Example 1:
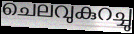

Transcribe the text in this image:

ചെലവുകുറച്ചു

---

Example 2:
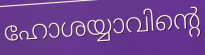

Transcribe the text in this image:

ഹോശയ്യാവിന്റെ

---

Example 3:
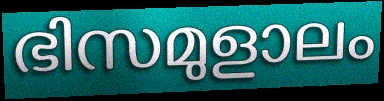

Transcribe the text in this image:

ഭിസമുളാലം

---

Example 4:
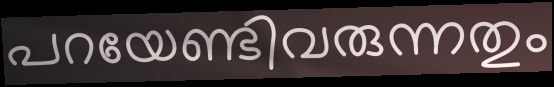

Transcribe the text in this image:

പറയേണ്ടിവരുന്നതും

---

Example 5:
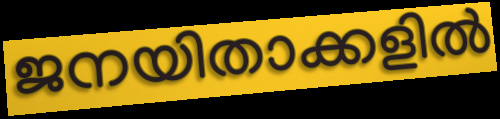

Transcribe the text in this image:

ജനയിതാക്കളിൽ